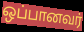
ஒப்பானவர்